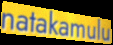
natakamulu